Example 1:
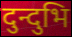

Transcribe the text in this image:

दुन्दुभि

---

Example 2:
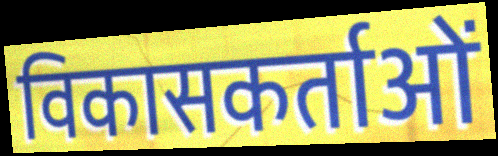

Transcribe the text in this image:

विकासकर्ताओं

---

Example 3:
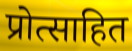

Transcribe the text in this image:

प्रोत्साहित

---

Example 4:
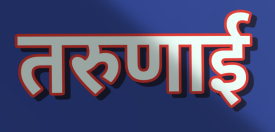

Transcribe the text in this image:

तरुणाई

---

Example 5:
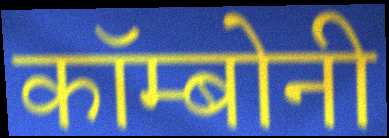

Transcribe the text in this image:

कॉम्बोनी